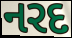
નરદ